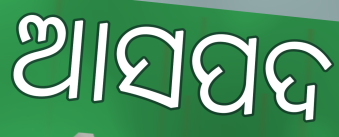
ଆସପଦ